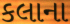
કલાના